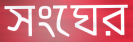
সংঘের